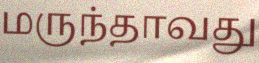
மருந்தாவது